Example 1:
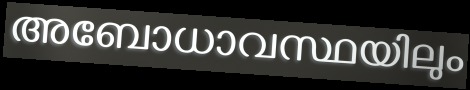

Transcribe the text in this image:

അബോധാവസ്ഥയിലും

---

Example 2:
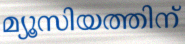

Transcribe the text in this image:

മ്യൂസിയത്തിന്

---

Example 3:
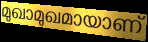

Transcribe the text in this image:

മുഖാമുഖമായാണ്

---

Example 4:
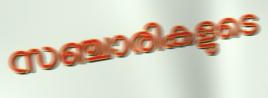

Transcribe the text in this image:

സഞ്ചാരികളുടെ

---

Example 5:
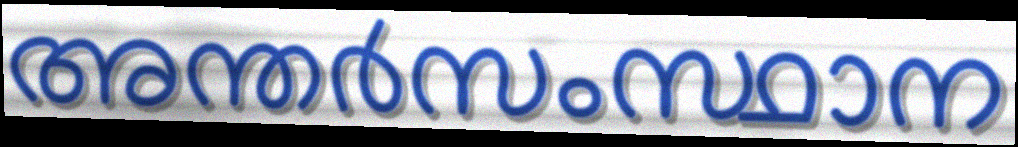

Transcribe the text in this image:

അന്തർസംസ്ഥാന